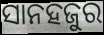
ସାନହଜୁର